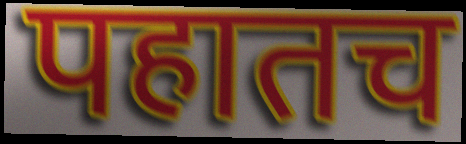
पहातच